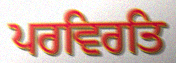
ਪਰਵਿਰਤਿ